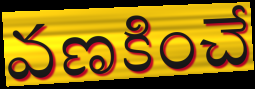
వణకించే